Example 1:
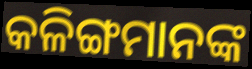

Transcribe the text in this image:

କଳିଙ୍ଗମାନଙ୍କ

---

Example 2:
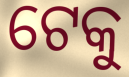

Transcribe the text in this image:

ଟେକୁ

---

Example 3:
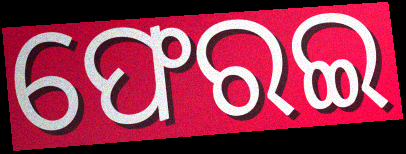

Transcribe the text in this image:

ଫେରଇ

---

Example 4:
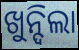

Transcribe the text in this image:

ଖୁନ୍ଦିଲା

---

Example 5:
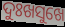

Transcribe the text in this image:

ଦୁଃଖସୁଖେ